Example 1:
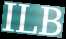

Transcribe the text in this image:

ILB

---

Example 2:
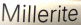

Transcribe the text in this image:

Millerite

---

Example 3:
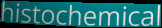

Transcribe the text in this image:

histochemical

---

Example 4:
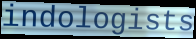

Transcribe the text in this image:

indologists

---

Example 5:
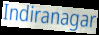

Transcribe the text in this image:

Indiranagar